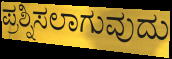
ಪ್ರಶ್ನಿಸಲಾಗುವುದು